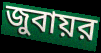
জুবায়র